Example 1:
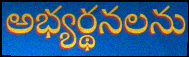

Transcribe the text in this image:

అభ్యర్థనలను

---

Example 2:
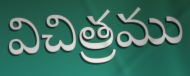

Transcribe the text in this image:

విచిత్రము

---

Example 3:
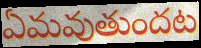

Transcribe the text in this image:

ఏమవుతుందట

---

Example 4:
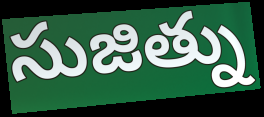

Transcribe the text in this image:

సుజిత్ను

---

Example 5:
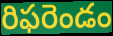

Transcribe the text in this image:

రిఫరెండం